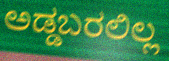
ಅಡ್ಡಬರಲಿಲ್ಲ